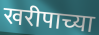
खरीपाच्या